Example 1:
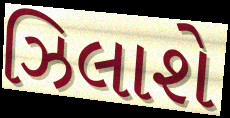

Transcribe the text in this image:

ઝિલાશે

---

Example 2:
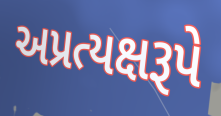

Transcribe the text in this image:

અપ્રત્યક્ષરૂપે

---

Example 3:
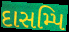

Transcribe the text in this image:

દાસમ્પિ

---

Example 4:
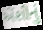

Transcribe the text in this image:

એંશીનું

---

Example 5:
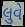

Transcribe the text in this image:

લુવે